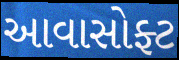
આવાસોફ્ટ